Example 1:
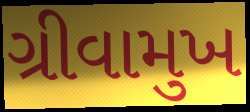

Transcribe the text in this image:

ગ્રીવામુખ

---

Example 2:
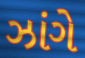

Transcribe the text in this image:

ઝાંગે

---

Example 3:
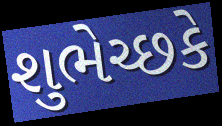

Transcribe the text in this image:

શુભેચ્છકે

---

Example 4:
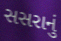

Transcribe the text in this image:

સસરાનું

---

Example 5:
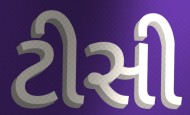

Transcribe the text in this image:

ટીસી